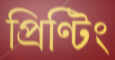
প্ৰিণ্টিং